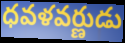
ధవళవర్ణుడు